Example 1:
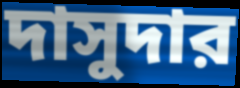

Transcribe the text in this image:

দাসুদার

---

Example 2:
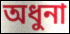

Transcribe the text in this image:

অধুনা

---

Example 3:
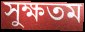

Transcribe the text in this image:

সুক্ষতম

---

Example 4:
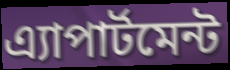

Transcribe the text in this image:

এ্যাপার্টমেন্ট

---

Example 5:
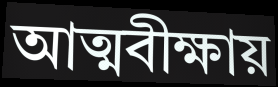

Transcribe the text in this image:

আত্মবীক্ষায়